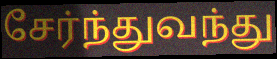
சேர்ந்துவந்து